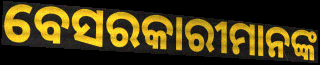
ବେସରକାରୀମାନଙ୍କ